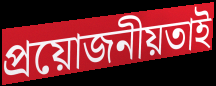
প্ৰয়োজনীয়তাই